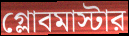
গ্লোবমাস্টার